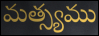
మత్స్యము